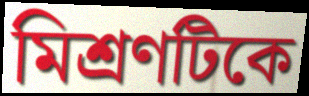
মিশ্রণটিকে